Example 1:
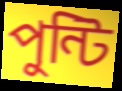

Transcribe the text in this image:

পুন্টি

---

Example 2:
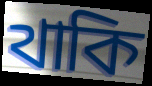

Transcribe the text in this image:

থাকি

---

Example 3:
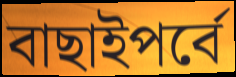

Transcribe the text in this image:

বাছাইপর্বে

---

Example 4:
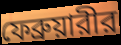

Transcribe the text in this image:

ফেব্রুয়ারীর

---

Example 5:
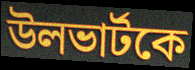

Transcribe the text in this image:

উলভার্টকে